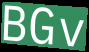
BGv